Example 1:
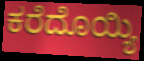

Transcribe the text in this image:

ಕರೆದೊಯ್ಯಿ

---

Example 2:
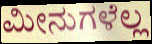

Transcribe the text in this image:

ಮೀನುಗಳೆಲ್ಲ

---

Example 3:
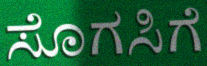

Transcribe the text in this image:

ಸೊಗಸಿಗೆ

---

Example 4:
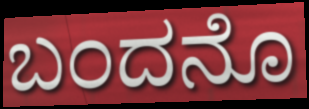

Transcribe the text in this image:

ಬಂದನೊ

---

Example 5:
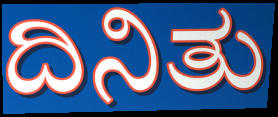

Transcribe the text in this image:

ದಿನಿತು